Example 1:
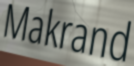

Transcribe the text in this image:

Makrand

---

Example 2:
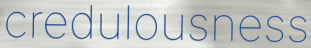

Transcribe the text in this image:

credulousness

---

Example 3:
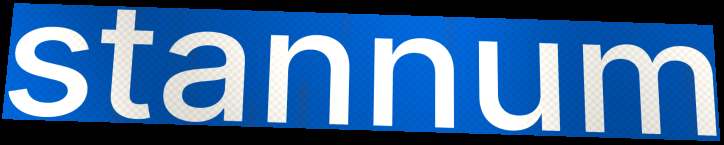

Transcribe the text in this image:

stannum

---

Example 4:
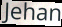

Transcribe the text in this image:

Jehan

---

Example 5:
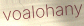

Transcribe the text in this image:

voalohany